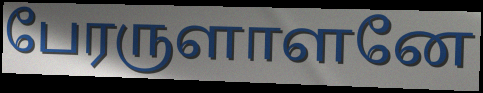
பேரருளாளனே